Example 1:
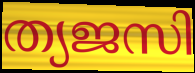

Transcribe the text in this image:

ത്യജസി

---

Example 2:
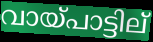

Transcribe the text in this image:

വായ്പാട്ടില്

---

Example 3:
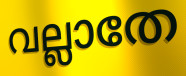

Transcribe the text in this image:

വല്ലാതേ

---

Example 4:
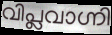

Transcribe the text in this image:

വിപ്ലവാഗ്നി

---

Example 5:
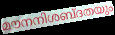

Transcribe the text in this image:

മൗനനിശബ്ദതയും